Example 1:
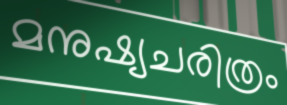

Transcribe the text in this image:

മനുഷ്യചരിത്രം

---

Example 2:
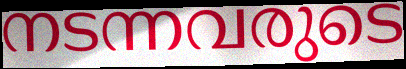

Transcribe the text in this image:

നടന്നവരുടെ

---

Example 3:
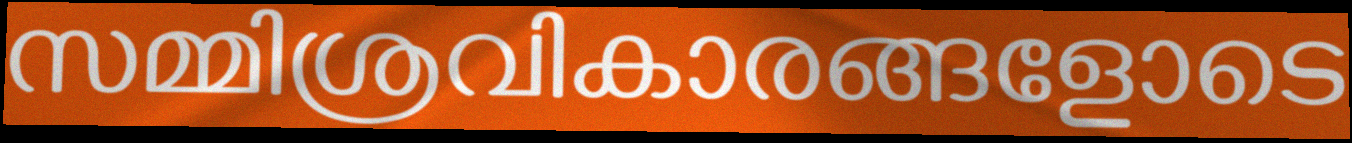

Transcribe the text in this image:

സമ്മിശ്രവികാരങ്ങളോടെ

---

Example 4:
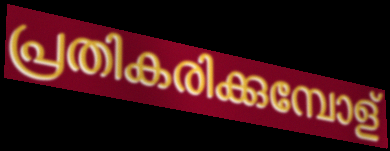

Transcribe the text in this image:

പ്രതികരിക്കുമ്പോള്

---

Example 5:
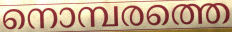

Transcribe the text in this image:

നൊമ്പരത്തെ